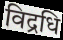
विद्रधि